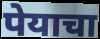
पेयाचा